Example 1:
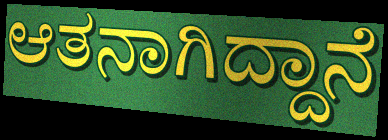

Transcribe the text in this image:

ಆತನಾಗಿದ್ದಾನೆ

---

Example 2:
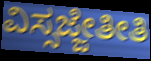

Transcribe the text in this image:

ವಿಸ್ಸಜ್ಜೇತೀತಿ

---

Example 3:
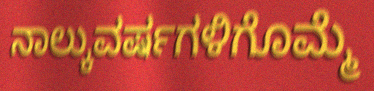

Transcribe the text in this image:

ನಾಲ್ಕುವರ್ಷಗಳಿಗೊಮ್ಮೆ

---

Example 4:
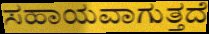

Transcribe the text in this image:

ಸಹಾಯವಾಗುತ್ತದೆ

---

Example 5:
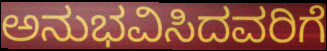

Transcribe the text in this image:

ಅನುಭವಿಸಿದವರಿಗೆ